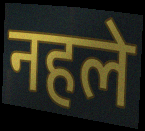
नहले